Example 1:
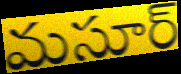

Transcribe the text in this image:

మసూర్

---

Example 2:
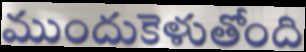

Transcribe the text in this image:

ముందుకెళుతోంది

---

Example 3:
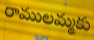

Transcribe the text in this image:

రాములమ్మకు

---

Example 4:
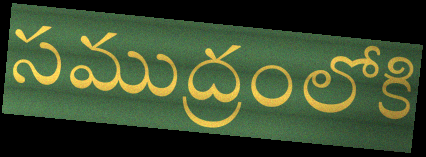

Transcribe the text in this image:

సముద్రంలోకి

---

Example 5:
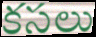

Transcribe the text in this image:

కసలు